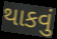
થાકવું